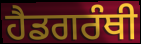
ਹੈਡਗਰੰਥੀ